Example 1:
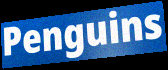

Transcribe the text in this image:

Penguins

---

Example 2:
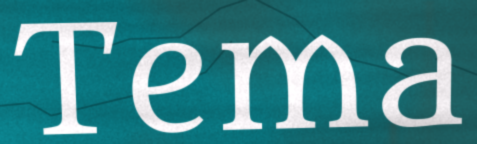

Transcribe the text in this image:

Tema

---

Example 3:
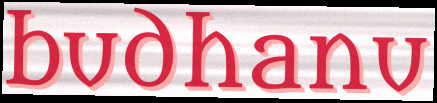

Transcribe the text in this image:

budhanu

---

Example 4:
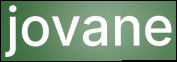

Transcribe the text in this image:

jovane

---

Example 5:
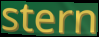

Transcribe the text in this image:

stern